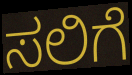
ಸಲಿಗೆ